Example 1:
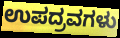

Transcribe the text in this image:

ಉಪದ್ರವಗಳು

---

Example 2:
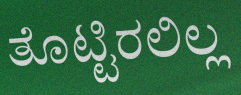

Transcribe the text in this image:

ತೊಟ್ಟಿರಲಿಲ್ಲ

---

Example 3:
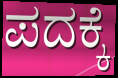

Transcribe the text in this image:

ಪದಕ್ಕೆ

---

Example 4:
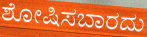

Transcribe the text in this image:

ಶೋಷಿಸಬಾರದು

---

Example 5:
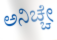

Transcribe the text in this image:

ಅನಿಚ್ಚೇ